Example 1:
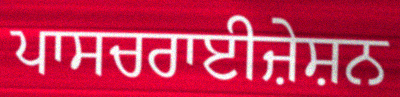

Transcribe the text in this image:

ਪਾਸਚਰਾਈਜ਼ੇਸ਼ਨ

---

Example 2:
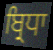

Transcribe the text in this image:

ਬ੍ਰਿਧਾ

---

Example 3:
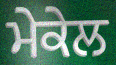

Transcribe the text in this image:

ਮੇਕੇਲ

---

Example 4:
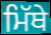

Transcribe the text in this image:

ਮਿੱਥੇ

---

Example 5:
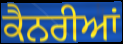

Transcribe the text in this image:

ਕੈਨਰੀਆਂ